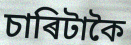
চাৰিটাকৈ